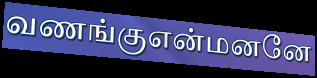
வணங்குஎன்மனனே